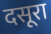
दसूरा